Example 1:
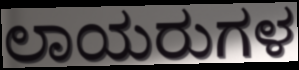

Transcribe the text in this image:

ಲಾಯರುಗಳ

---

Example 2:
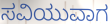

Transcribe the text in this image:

ಸವಿಯುವಾಗ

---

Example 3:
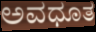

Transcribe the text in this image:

ಅವಧೂತ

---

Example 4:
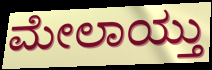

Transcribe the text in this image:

ಮೇಲಾಯ್ತು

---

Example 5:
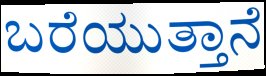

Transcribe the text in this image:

ಬರೆಯುತ್ತಾನೆ